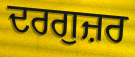
ਦਰਗੁਜ਼ਰ